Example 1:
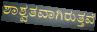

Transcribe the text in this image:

ಶಾಶ್ವತವಾಗಿರುತ್ತವೆ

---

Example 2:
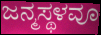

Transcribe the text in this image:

ಜನ್ಮಸ್ಥಳವೂ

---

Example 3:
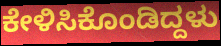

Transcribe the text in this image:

ಕೇಳಿಸಿಕೊಂಡಿದ್ದಳು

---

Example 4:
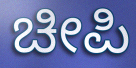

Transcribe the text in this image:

ಚೀಪಿ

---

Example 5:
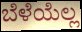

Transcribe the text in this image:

ಬೆಳೆಯೆಲ್ಲ